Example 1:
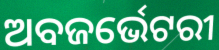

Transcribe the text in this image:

ଅବଜର୍ଭେଟରୀ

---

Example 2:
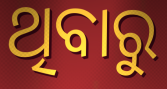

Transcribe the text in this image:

ଥିବାରୁ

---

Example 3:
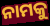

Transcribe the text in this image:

ନାମକୁ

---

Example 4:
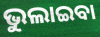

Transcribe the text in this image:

ଭୁଲାଇବା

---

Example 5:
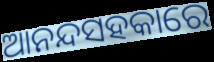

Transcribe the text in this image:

ଆନନ୍ଦସହକାରେ